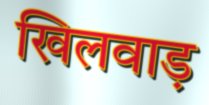
खिलवाड़